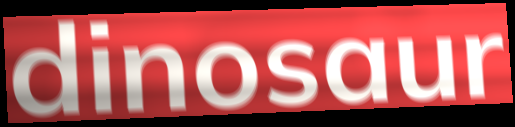
dinosaur